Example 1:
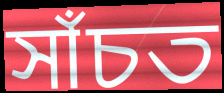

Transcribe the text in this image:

সাঁচত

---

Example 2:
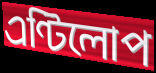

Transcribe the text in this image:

এণ্টিলোপ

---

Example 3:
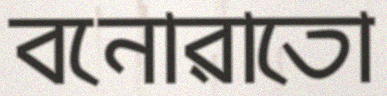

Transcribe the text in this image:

বনোৱাতো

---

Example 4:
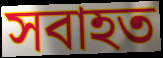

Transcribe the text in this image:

সবাহত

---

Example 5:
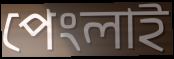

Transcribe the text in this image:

পেংলাই